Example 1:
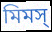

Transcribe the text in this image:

মিমস্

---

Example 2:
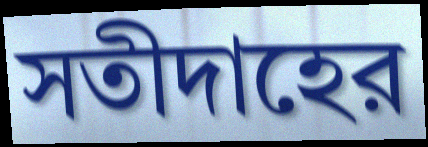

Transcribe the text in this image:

সতীদাহের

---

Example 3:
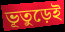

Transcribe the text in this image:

ভূতুড়েই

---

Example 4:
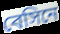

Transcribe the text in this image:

বেসিনে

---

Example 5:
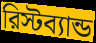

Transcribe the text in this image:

রিস্টব্যান্ড